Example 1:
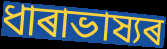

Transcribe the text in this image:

ধাৰাভাষ্যৰ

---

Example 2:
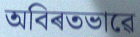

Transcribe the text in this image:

অবিৰতভাৱে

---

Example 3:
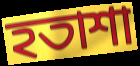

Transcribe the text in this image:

হতাশা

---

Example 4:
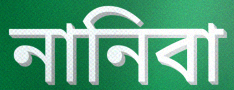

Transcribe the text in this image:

নানিবা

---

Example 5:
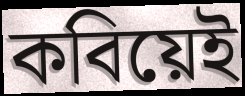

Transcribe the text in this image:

কবিয়েই